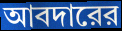
আবদারের